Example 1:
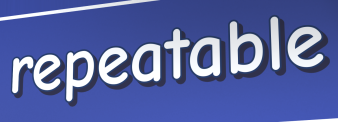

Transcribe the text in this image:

repeatable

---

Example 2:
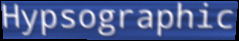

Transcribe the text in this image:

Hypsographic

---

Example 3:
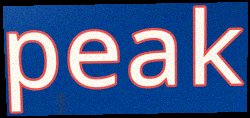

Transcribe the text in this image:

peak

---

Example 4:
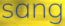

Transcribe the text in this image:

sang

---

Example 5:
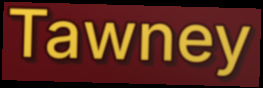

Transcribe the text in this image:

Tawney